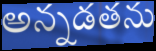
అన్నడతను